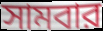
সামবার